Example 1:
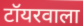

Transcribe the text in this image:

टॉयरवाला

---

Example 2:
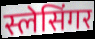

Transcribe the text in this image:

स्लेसिंगर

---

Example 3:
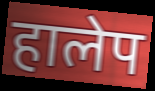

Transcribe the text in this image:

हालेप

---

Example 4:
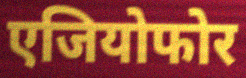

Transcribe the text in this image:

एजियोफोर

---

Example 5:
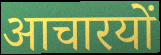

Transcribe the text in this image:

आचारयों